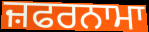
ਜ਼ਫਰਨਾਮਾ